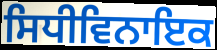
ਸਿਧੀਵਿਨਾਇਕ